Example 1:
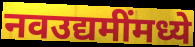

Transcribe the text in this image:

नवउद्यमींमध्ये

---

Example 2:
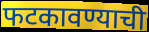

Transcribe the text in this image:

फटकावण्याची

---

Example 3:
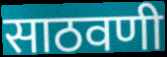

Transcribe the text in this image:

साठवणी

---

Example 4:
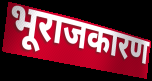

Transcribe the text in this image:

भूराजकारण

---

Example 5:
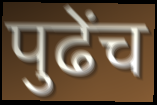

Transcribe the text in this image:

पुढेंच